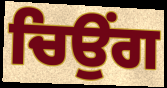
ਚਿਉਂਗ